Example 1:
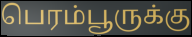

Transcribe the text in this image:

பெரம்பூருக்கு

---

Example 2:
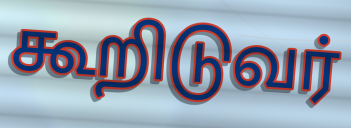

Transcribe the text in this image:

கூறிடுவர்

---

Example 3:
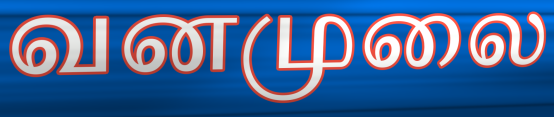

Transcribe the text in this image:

வனமுலை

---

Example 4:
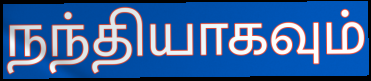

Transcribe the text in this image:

நந்தியாகவும்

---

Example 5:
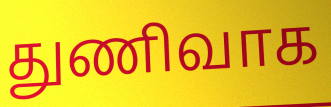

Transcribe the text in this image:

துணிவாக